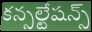
కన్సల్టేషన్స్